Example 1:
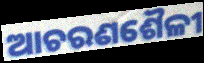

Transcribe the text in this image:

ଆଚରଣଶୈଳୀ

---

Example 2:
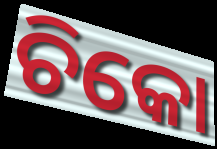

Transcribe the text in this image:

ଚିକୋ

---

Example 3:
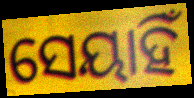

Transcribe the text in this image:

ସେୟାହିଁ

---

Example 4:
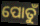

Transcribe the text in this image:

ପୋତୁଁ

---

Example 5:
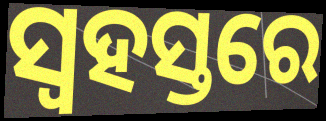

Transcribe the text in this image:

ସ୍ୱହସ୍ତରେ